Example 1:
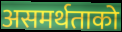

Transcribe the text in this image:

असमर्थताको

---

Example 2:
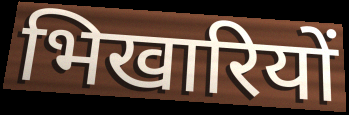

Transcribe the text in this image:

भिखारियों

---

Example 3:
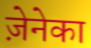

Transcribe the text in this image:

ज़ेनेका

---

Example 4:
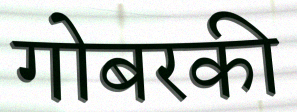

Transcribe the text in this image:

गोबरकी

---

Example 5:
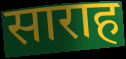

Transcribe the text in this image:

साराह